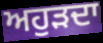
ਅਹੁੜਦਾ